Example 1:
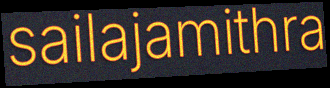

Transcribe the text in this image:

sailajamithra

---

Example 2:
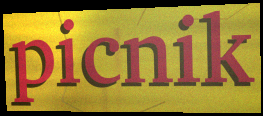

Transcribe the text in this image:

picnik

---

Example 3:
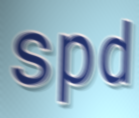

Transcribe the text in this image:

spd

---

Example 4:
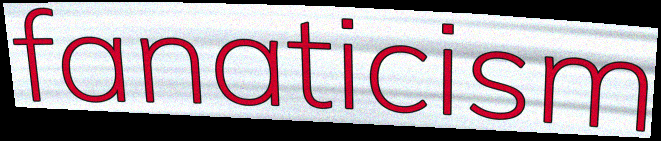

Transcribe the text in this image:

fanaticism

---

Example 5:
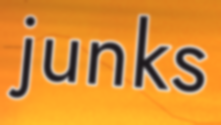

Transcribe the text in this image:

junks